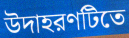
উদাহরণটিতে